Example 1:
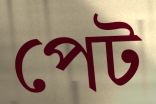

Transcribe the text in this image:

পেট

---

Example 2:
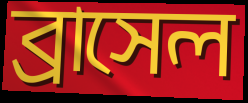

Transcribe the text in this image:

ব্রাসেল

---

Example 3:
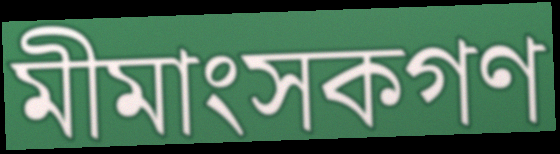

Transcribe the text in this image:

মীমাংসকগণ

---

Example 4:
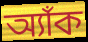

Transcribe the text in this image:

অ্যাঁক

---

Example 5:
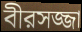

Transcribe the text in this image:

বীরসজ্জা